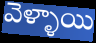
వెళ్ళాయి